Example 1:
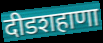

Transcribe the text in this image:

दीडशहाणा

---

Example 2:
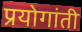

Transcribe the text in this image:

प्रयोगांती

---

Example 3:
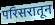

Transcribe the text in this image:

परिसरातून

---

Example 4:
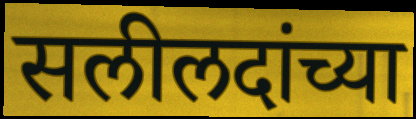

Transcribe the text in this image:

सलीलदांच्या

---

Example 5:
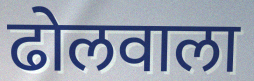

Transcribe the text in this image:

ढोलवाला